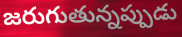
జరుగుతున్నప్పుడు